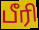
பீரி